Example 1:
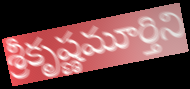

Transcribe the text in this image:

శ్రీకృష్ణమూర్తిని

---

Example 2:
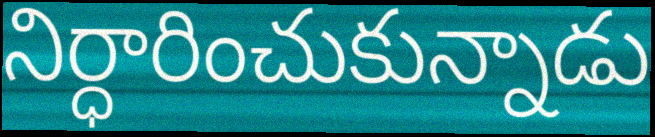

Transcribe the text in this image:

నిర్ధారించుకున్నాడు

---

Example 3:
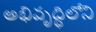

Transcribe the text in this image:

అభివృద్ధిలోని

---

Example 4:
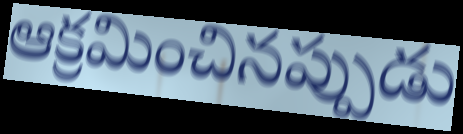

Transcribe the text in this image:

ఆక్రమించినప్పుడు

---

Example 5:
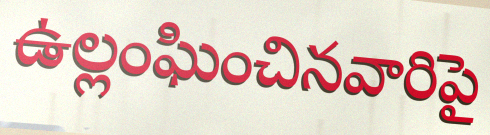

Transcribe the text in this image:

ఉల్లంఘించినవారిపై